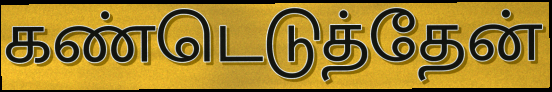
கண்டெடுத்தேன்